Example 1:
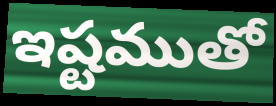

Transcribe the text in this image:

ఇష్టముతో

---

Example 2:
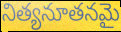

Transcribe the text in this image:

నిత్యనూతనమై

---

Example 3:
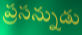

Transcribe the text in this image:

ప్రసన్నుడు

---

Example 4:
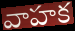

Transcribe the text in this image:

వాహక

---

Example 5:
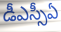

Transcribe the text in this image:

డీఎస్సీఏ